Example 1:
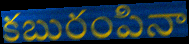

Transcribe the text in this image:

కబురంపినా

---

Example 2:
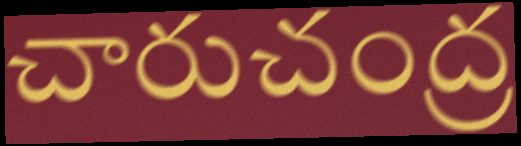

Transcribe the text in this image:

చారుచంద్ర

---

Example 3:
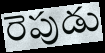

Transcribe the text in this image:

రెపుడు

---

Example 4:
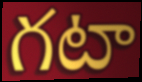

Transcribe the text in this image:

గటా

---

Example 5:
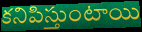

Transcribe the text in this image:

కనిపిస్తుంటాయి